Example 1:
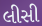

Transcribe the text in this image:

લીસી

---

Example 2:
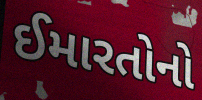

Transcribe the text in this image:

ઈમારતોનો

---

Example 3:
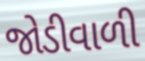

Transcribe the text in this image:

જોડીવાળી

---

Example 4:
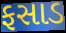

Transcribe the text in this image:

ફસાડ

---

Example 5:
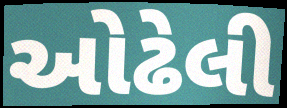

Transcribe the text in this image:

ઓઢેલી